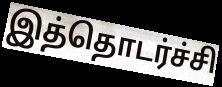
இத்தொடர்ச்சி